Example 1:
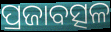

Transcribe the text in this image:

ପ୍ରଜାବତ୍ସଳ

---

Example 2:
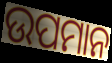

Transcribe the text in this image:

ଉପମାନ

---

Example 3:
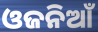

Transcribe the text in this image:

ଓଜନିଆଁ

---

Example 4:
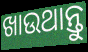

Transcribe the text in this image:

ଖାଉଥାନ୍ତୁ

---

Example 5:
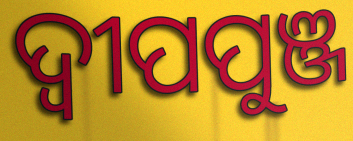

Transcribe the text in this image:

ଦ୍ୱୀପପୁଞ୍ଜ